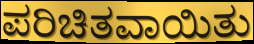
ಪರಿಚಿತವಾಯಿತು